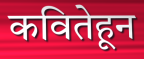
कवितेहून